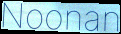
Noonan